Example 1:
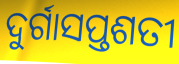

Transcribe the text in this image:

ଦୁର୍ଗାସପ୍ତଶତୀ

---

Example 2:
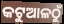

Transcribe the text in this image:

କଟୁଆଳଠୁଁ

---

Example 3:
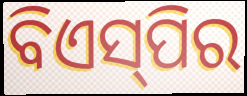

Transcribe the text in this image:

ବିଏସ୍‌ପିର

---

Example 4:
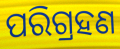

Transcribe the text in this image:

ପରିଗ୍ରହଣ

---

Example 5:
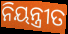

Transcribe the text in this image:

ନିୟନ୍ତ୍ରୀତ